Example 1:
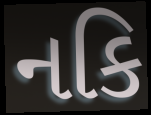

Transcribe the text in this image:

નકિ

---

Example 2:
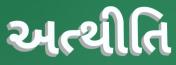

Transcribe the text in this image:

અત્થીતિ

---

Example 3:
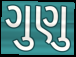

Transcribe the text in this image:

ગુણુ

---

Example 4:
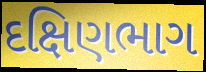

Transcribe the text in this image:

દક્ષિણભાગ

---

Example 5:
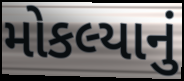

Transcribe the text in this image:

મોકલ્યાનું